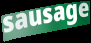
sausage